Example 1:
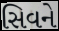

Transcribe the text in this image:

સિવને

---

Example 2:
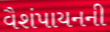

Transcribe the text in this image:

વૈશંપાયનની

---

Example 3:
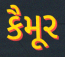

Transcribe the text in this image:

કૈમૂર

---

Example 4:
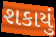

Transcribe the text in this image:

શકાયું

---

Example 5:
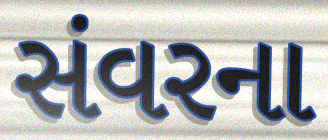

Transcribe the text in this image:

સંવરના